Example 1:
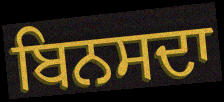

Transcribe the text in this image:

ਬਿਨਸਦਾ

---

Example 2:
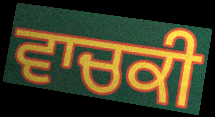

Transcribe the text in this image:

ਵਾਚਕੀ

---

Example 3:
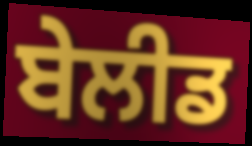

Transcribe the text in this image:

ਬੇਲੀਡ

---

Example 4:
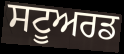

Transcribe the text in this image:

ਸਟੂਅਰਡ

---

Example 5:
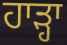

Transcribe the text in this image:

ਹਾੜ੍ਹਾ